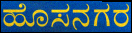
ಹೊಸನಗರ